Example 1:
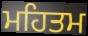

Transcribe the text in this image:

ਮਹਿਤਮ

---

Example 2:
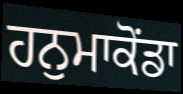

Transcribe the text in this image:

ਹਨੁਮਾਕੋਂਡਾ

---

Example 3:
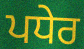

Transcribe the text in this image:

ਪਧੇਰ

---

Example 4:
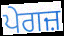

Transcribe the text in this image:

ਪੇਗਜ਼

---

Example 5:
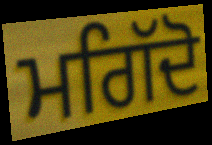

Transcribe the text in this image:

ਮਗਿੱਦੋ